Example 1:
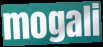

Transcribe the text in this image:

mogali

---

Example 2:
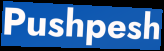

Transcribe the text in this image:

Pushpesh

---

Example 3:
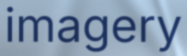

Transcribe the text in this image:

imagery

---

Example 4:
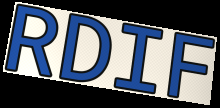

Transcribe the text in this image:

RDIF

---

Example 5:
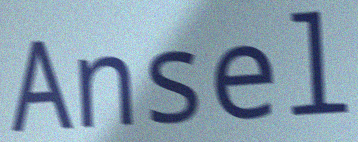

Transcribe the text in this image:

Ansel